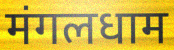
मंगलधाम